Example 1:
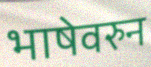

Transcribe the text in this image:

भाषेवरुन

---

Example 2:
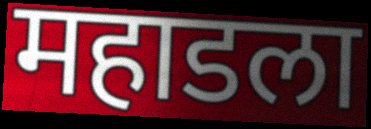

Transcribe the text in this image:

महाडला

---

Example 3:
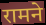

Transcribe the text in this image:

रामने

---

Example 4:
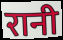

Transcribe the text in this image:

रानी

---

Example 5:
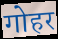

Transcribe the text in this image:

गोहर